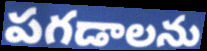
పగడాలను